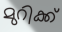
മുറിക്ക്